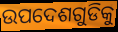
ଉପଦେଶଗୁଡିକୁ